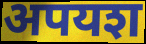
अपयश